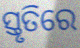
ସ୍ତୃତିରେ